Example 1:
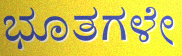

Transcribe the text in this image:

ಭೂತಗಳೇ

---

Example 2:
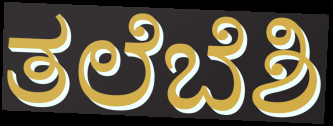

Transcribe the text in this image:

ತಲೆಬೆಶಿ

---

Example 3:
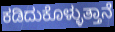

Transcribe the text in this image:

ಕಡಿದುಕೊಳ್ಳುತ್ತಾನೆ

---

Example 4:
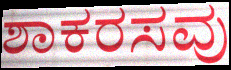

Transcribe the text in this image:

ಶಾಕರಸವು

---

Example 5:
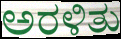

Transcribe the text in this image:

ಅರಳಿತು